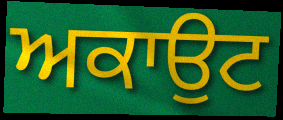
ਅਕਾਉਟ